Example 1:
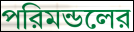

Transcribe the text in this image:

পরিমন্ডলের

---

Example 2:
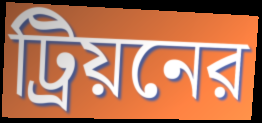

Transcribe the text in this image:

ট্রিয়নের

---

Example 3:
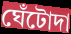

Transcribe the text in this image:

ঘেঁটোদা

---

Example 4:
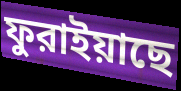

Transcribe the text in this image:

ফুরাইয়াছে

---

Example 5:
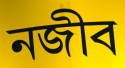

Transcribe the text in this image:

নজীব